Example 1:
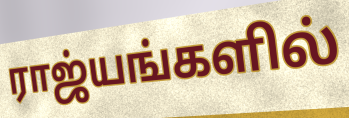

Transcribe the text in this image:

ராஜ்யங்களில்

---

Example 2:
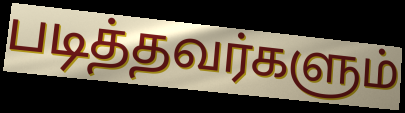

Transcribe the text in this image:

படித்தவர்களும்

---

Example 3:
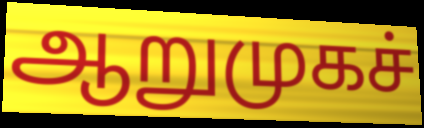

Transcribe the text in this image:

ஆறுமுகச்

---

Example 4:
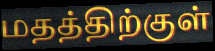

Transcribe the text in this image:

மதத்திற்குள்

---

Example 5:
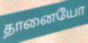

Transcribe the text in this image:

தானையோ